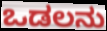
ಒಡಲನು